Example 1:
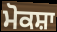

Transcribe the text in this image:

ਮੋਕਸ਼ਾ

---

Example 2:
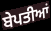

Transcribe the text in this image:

ਬੇਪਤੀਆਂ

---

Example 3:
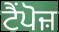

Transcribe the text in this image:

ਟੈਂਪੋਜ਼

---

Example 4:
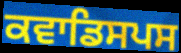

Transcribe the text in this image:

ਕਵਾਡਿਸਪਸ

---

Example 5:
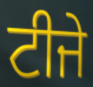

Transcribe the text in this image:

ਟੀਜੇ